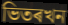
ভিতৰখন